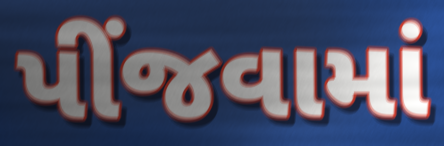
પીંજવામાં